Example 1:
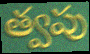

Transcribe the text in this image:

త్వపు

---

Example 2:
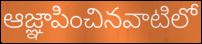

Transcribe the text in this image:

ఆజ్ఞాపించినవాటిలో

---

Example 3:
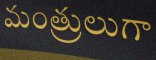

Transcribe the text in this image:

మంత్రులుగా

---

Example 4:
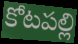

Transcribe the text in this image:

కోటపల్లి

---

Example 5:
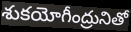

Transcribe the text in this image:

శుకయోగీంద్రునితో